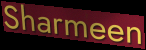
Sharmeen